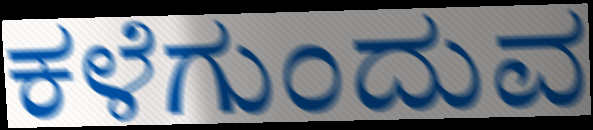
ಕಳೆಗುಂದುವ